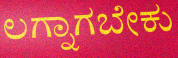
ಲಗ್ನಾಗಬೇಕು